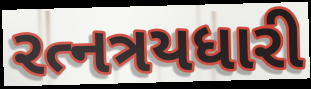
રત્નત્રયધારી